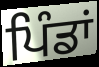
ਪਿੰਡਾਂ